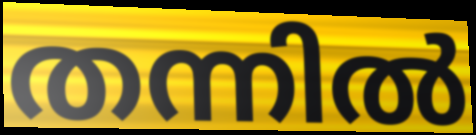
തന്നിൽ